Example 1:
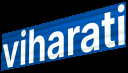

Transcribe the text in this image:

viharati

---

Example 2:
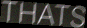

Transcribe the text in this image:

THATS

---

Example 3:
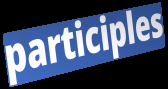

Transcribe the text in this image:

participles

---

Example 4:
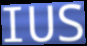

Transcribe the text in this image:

IUS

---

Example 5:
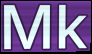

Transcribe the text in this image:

Mk